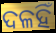
ଦଳହିଁ